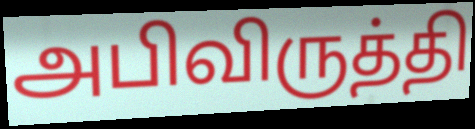
அபிவிருத்தி